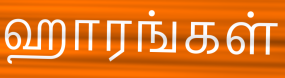
ஹாரங்கள்